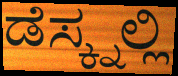
ಡೆಸ್ಕ್ನಲ್ಲಿ